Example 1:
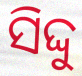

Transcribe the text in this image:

ସିଦ୍ଦୁ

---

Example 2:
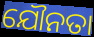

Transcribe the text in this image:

ଯୌନତା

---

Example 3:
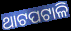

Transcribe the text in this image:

ଥାଟପଟାଳି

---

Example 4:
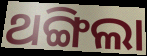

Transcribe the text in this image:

ଥଙ୍ଗିଲା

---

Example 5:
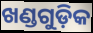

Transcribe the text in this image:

ଖଣ୍ଡଗୁଡ଼ିକ